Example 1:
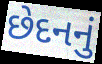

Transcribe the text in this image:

છેદનનું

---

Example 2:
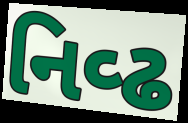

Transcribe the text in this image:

નિવ્ઢ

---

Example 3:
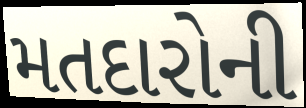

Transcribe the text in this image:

મતદારોની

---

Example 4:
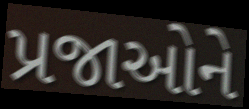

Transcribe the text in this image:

પ્રજાઓને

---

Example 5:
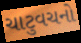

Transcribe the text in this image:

ચાટુવચનો